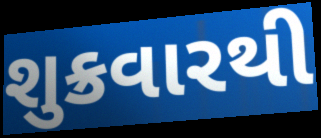
શુક્રવારથી